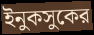
ইনুকসুকের